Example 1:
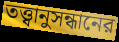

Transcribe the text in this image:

তত্ত্বানুসন্ধানের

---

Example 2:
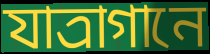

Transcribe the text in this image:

যাত্রাগানে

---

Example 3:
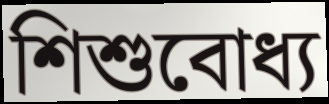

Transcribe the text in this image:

শিশুবোধ্য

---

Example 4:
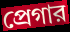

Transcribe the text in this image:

প্রেগার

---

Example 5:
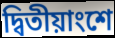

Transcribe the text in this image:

দ্বিতীয়াংশে